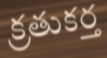
క్రతుకర్త